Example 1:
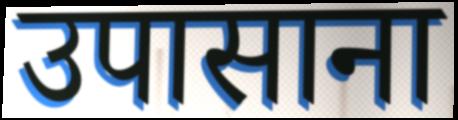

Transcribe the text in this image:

उपासाना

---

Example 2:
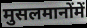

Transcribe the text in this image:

मुसलमानोंमें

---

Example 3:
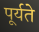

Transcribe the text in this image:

पूर्यते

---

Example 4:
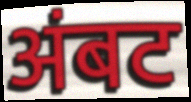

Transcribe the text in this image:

अंबट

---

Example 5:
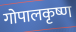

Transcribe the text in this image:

गोपालकृष्ण